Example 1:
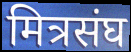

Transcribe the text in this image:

मित्रसंघ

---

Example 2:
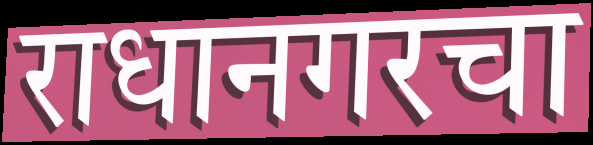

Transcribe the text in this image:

राधानगरचा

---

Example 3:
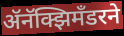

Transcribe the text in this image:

ॲनॅक्झिमँडरने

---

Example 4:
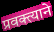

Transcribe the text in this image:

प्रवक्त्याने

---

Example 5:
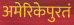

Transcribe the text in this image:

अमेरिकेपुरतं